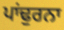
ਪਾਂਢੁਰਨਾ